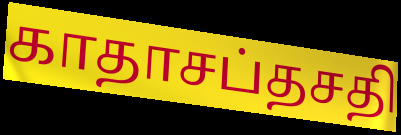
காதாசப்தசதி